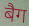
बैग